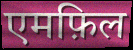
एमफ़िल